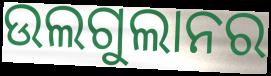
ଉଲଗୁଲାନର